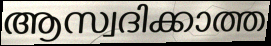
ആസ്വദിക്കാത്ത